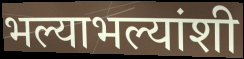
भल्याभल्यांशी